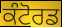
ਕੰਟੋਰਡ